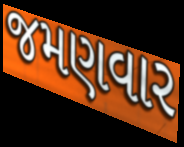
જમણવાર